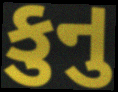
કુનુ